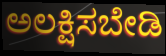
ಅಲಕ್ಷಿಸಬೇಡಿ